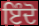
ਇੰਦੋ